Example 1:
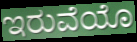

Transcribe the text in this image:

ಇರುವೆಯೊ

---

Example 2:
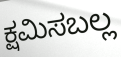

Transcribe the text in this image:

ಕ್ಷಮಿಸಬಲ್ಲ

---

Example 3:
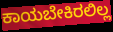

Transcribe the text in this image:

ಕಾಯಬೇಕಿರಲಿಲ್ಲ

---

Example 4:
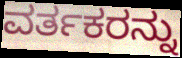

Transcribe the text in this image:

ವರ್ತಕರನ್ನು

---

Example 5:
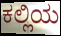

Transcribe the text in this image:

ಕಲ್ಲಿಯ